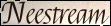
Neestream